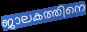
ജാലകത്തിനെ